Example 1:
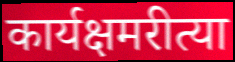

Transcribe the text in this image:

कार्यक्षमरीत्या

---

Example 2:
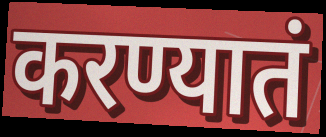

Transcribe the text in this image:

करण्यातं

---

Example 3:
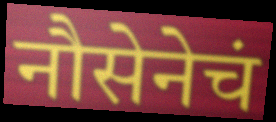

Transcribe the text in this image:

नौसेनेचं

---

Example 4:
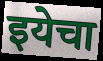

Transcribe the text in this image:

इयेचा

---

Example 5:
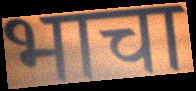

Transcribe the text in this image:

भाचा